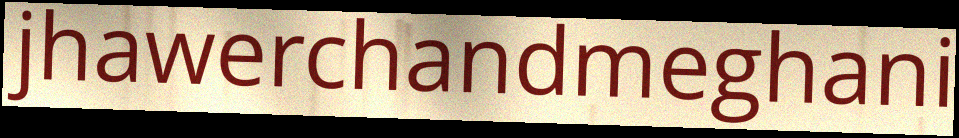
jhawerchandmeghani